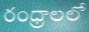
రంధ్రాలలో